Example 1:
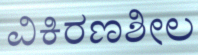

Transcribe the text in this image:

ವಿಕಿರಣಶೀಲ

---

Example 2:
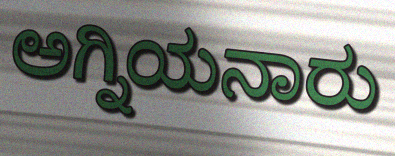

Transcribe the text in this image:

ಅಗ್ನಿಯನಾರು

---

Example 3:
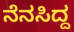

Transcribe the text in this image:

ನೆನಸಿದ್ದ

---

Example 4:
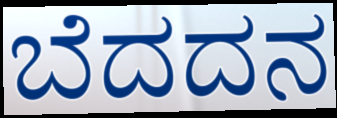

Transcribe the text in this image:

ಬೆದದನ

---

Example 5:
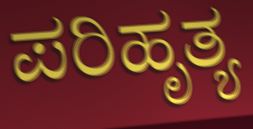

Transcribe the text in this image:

ಪರಿಹೃತ್ಯ